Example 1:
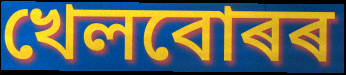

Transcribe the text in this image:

খেলবোৰৰ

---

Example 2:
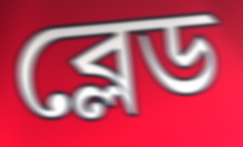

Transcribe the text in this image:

ব্লেড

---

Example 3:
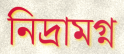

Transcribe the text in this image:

নিদ্ৰামগ্ন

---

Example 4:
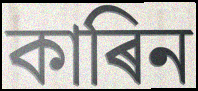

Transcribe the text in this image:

কাৰিন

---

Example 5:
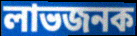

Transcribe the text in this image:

লাভজনক